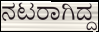
ನಟರಾಗಿದ್ದ